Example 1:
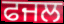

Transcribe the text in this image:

ਫਜਲ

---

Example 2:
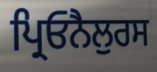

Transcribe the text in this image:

ਪ੍ਰਿਓਨੈਲੁਰਸ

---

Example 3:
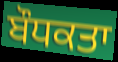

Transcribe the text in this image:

ਬੌਧਕਤਾ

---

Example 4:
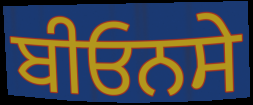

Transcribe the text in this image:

ਬੀਓਨਸੇ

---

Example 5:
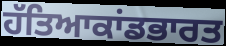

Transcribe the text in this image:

ਹੱਤਿਆਕਾਂਡਭਾਰਤ